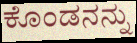
ಕೊಂಡನನ್ನು